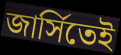
জার্সিতেই